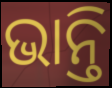
ଭାନ୍ତି